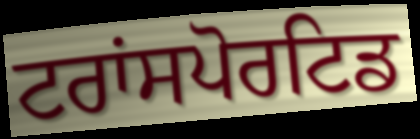
ਟਰਾਂਸਪੋਰਟਿਡ